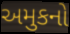
અમુકનો